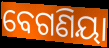
ବେଗଣିୟା